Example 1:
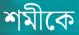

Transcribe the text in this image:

শমীকে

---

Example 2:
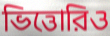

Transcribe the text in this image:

ভিত্তোরিও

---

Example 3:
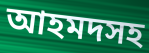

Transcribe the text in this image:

আহমদসহ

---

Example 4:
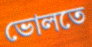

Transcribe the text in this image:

ভোলতে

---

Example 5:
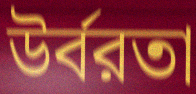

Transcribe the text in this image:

উর্বরতা